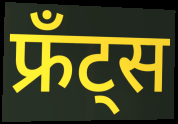
फ्रँट्स